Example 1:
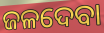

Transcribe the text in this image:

ଜଳଦେବା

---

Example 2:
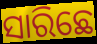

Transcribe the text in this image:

ସାରିଛେ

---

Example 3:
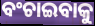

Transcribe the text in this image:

ବଂଚାଇବାକୁ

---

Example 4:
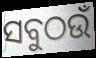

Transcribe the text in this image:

ସବୁଠଉଁ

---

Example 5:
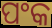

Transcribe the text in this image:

ପଂକ